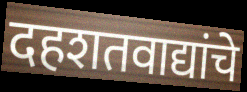
दहशतवाद्यांचे